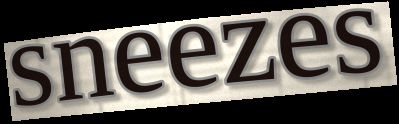
sneezes